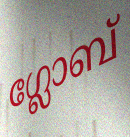
ഗ്ലോബ്